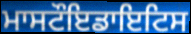
ਮਾਸਟੌਇਡਾਇਟਿਸ